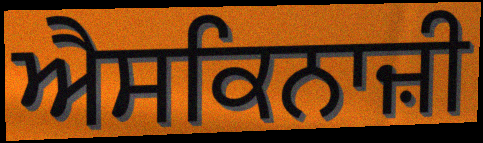
ਐਸਕਿਨਾਜ਼ੀ